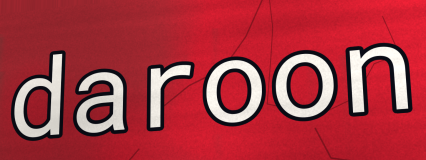
daroon